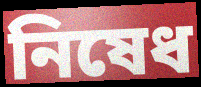
নিষেধ